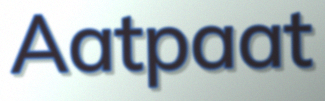
Aatpaat